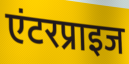
एंटरप्राइज